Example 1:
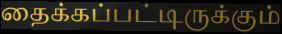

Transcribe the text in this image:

தைக்கப்பட்டிருக்கும்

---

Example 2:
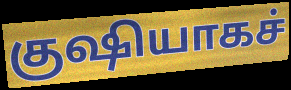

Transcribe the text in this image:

குஷியாகச்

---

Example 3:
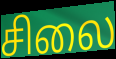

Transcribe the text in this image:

சிலை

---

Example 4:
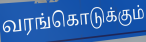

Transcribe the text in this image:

வரங்கொடுக்கும்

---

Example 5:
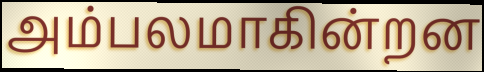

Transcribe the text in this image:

அம்பலமாகின்றன